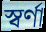
স্বর্ণা